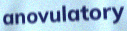
anovulatory